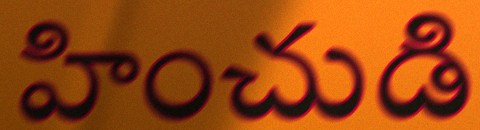
హించుడి